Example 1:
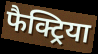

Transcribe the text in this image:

फैक्ट्रिया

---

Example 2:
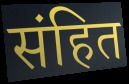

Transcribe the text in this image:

संहित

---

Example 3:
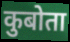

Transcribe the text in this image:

कुबोता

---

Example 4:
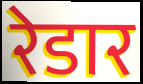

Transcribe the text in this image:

रेडार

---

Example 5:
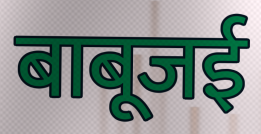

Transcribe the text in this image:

बाबूजई